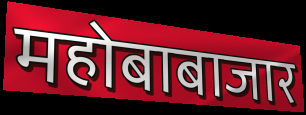
महोबाबाजार